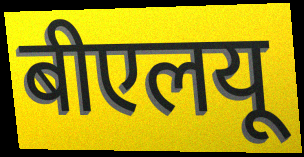
बीएलयू